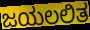
ಜಯಲಲಿತ